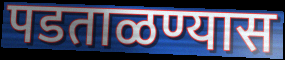
पडताळण्यास